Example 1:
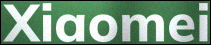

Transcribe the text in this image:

Xiaomei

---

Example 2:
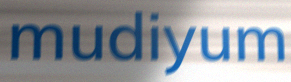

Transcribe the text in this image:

mudiyum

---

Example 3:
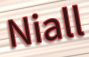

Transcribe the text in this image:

Niall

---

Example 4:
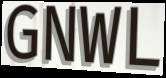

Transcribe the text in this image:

GNWL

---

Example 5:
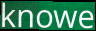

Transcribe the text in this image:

knowe